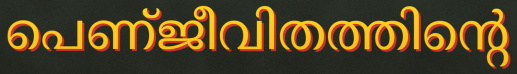
പെണ്ജീവിതത്തിന്റെ